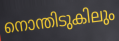
നൊന്തിടുകിലും